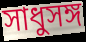
সাধুসঙ্গ